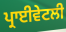
ਪ੍ਰਾਈਵੇਟਲੀ